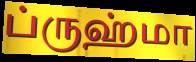
ப்ருஹ்மா